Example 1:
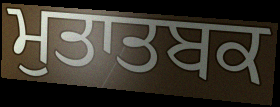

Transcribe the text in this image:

ਮੁਤਾਤਬਕ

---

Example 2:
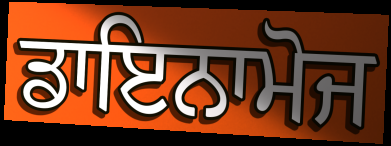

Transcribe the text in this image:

ਡਾਇਨਾਮੋਜ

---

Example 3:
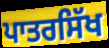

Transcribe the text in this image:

ਪਾਤਰਸਿੱਖ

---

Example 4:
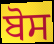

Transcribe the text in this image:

ਬੋਸ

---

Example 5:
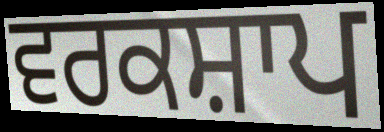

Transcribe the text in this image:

ਵਰਕਸ਼ਾਪ